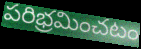
పరిభ్రమించటం